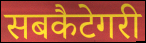
सबकैटेगरी